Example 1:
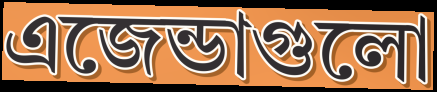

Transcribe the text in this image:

এজেন্ডাগুলো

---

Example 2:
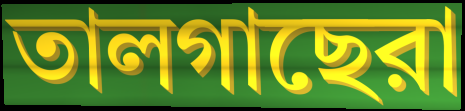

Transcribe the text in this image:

তালগাছেরা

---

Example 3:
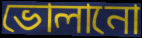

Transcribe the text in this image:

ভোলানো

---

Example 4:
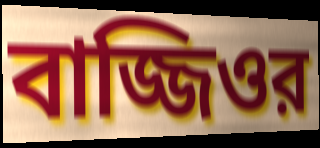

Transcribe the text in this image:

বাজ্জিওর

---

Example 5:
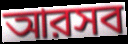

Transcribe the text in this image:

আরসব